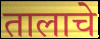
तालाचे